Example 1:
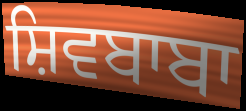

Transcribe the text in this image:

ਸ਼ਿਵਬਾਬਾ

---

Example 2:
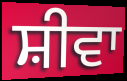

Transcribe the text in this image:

ਸ਼ੀਵਾ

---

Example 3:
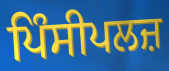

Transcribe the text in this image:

ਪਿੰਸੀਪਲਜ਼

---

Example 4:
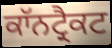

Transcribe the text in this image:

ਕਾੱਨਟ੍ਰੈਕਟ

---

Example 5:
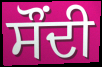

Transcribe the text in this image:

ਸੌਂਦੀ